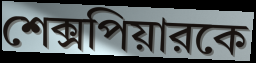
শেক্সপিয়ারকে